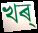
খৰ্